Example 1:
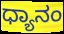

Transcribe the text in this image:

ಧ್ಯಾನಂ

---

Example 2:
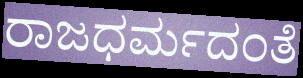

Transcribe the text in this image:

ರಾಜಧರ್ಮದಂತೆ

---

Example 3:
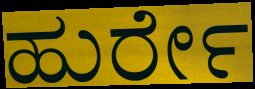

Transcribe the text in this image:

ಹುರ್ರೇ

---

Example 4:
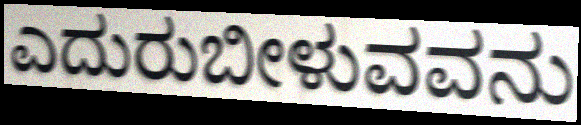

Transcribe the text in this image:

ಎದುರುಬೀಳುವವನು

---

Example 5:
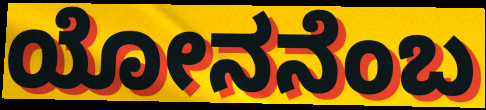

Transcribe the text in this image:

ಯೋನನೆಂಬ